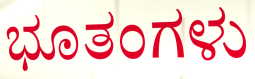
ಭೂತಂಗಳು